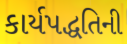
કાર્યપદ્ધતિની